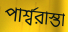
পার্শ্বরাস্তা